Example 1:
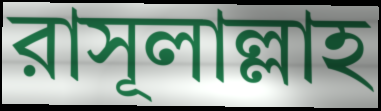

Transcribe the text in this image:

রাসূলাল্লাহ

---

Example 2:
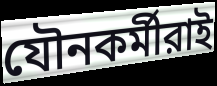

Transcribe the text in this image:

যৌনকর্মীরাই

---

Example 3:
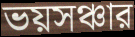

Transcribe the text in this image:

ভয়সঞ্চার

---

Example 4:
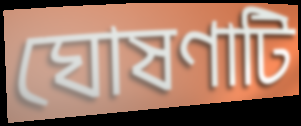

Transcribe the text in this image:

ঘোষণাটি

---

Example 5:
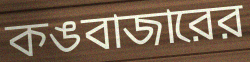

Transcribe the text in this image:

কঙবাজারের